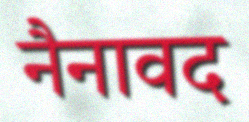
नैनावद